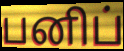
பனிப்